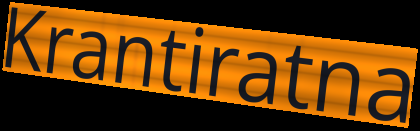
Krantiratna